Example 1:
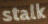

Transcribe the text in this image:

stalk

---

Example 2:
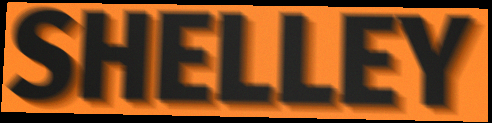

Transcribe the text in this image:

SHELLEY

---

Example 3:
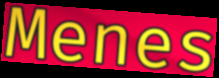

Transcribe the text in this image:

Menes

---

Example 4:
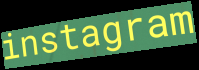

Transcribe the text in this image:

instagram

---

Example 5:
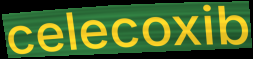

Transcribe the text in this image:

celecoxib